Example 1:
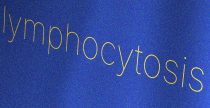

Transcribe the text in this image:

lymphocytosis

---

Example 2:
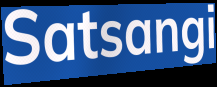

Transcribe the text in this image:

Satsangi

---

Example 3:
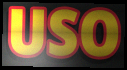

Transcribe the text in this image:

USO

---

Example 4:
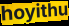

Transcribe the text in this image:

hoyithu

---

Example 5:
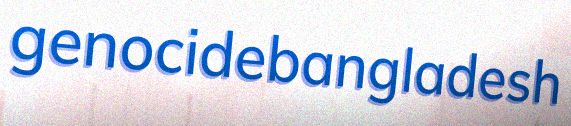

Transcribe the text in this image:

genocidebangladesh